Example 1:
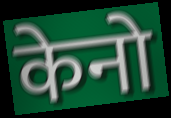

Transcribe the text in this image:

केनो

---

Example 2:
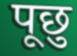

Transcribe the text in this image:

पूछु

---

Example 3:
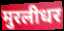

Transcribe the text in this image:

मुरलीधर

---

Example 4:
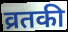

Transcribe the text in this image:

व्रतकी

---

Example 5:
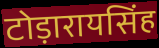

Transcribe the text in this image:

टोड़ारायसिंह